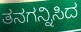
ತನಗನ್ನಿಸಿದ